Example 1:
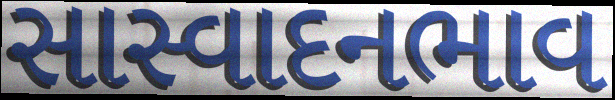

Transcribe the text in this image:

સાસ્વાદનભાવ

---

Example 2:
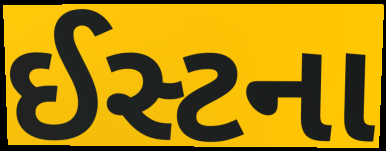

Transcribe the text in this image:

ઈસ્ટના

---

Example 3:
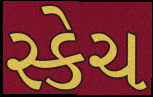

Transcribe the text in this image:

સ્કેચ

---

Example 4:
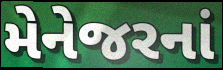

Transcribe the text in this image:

મેનેજરનાં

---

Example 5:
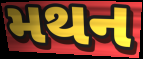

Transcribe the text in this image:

મથન